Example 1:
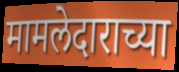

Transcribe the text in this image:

मामलेदाराच्या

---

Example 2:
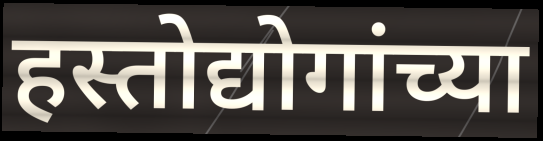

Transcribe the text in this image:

हस्तोद्योगांच्या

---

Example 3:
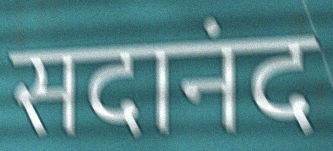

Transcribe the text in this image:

सदानंद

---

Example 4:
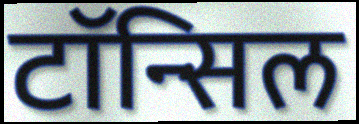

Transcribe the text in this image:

टॉन्सिल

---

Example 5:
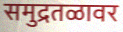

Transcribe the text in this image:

समुद्रतळावर